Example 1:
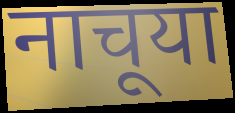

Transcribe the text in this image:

नाचूया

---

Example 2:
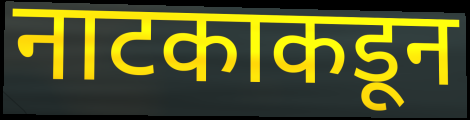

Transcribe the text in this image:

नाटकाकडून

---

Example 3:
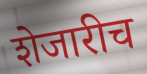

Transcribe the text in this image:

शेजारीच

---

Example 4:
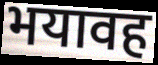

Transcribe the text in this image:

भयावह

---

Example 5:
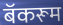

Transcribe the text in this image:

बॅकरूम